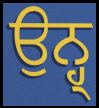
ਉਨ੍ਹ੍